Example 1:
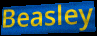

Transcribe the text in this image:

Beasley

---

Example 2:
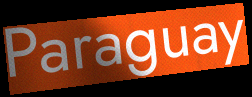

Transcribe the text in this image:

Paraguay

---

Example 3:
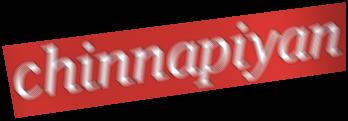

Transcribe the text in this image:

chinnapiyan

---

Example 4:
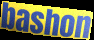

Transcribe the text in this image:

bashon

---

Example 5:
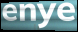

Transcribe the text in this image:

enye